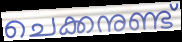
ചെക്കനുണ്ട്